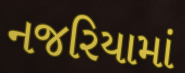
નજરિયામાં